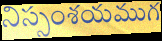
నిస్సంశయముగ